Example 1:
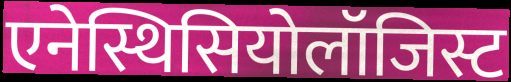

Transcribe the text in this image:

एनेस्थिसियोलॉजिस्ट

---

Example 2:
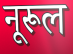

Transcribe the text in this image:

नूरूल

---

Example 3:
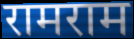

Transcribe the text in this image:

रामराम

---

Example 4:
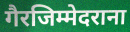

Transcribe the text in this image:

गैरजिम्मेदराना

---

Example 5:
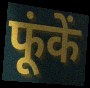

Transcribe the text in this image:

फूंकें